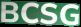
BCSG